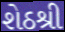
શેઠશ્રી